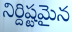
నిర్దిష్టమైన